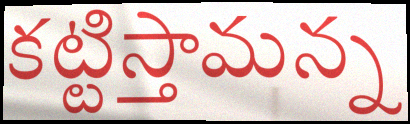
కట్టిస్తామన్న